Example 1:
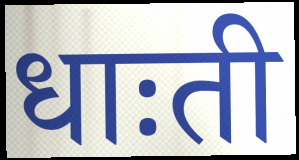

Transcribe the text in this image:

धाःती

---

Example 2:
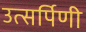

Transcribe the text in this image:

उत्सर्पिणी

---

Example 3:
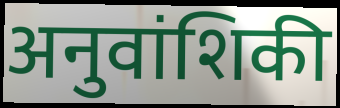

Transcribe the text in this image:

अनुवांशिकी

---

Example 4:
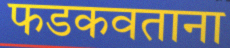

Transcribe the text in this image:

फडकवताना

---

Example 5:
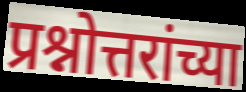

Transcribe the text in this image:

प्रश्नोत्तरांच्या